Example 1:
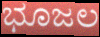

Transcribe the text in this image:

ಭೂಜಲ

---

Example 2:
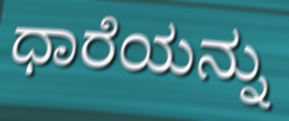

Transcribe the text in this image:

ಧಾರೆಯನ್ನು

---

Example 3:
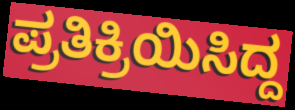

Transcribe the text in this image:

ಪ್ರತಿಕ್ರಿಯಿಸಿದ್ದ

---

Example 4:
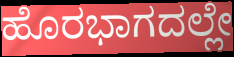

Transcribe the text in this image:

ಹೊರಭಾಗದಲ್ಲೇ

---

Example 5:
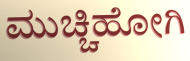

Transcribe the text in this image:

ಮುಚ್ಚಿಹೋಗಿ